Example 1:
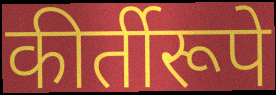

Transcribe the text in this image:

कीर्तीरूपे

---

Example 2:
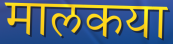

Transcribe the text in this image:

मालकया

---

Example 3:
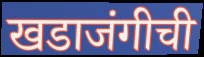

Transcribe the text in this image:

खडाजंगीची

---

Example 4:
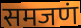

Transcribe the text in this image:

समजणं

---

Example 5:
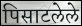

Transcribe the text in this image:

पिसाटलेले